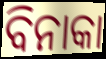
ବିନାକା